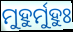
ମୁହୁର୍ମୁହୁଃ